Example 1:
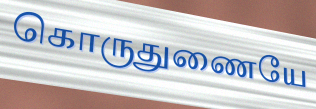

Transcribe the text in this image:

கொருதுணையே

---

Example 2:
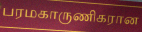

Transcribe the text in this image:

பரமகாருணிகரான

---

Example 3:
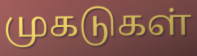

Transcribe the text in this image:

முகடுகள்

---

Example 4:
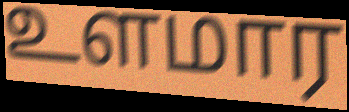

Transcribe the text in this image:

உளமார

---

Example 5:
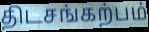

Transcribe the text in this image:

திடசங்கற்பம்